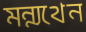
মন্মথেন